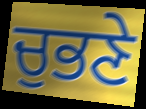
ਚੁਭਣੇ